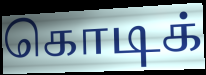
கொடிக்